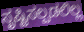
ಸೃಷ್ಟಿಸಲ್ಪಡಲಿಲ್ಲ